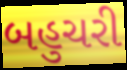
બહુચરી